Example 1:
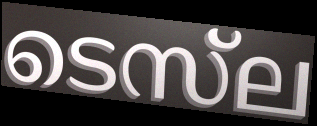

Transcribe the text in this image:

ടെസ്‌ല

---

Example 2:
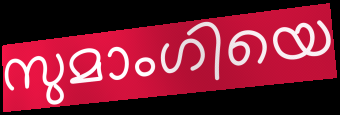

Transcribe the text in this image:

സുമാംഗിയെ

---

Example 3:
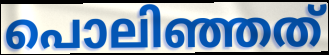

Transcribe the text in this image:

പൊലിഞ്ഞത്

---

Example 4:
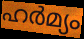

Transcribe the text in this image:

ഹർമ്യം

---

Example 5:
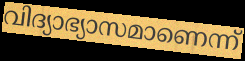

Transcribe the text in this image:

വിദ്യാഭ്യാസമാണെന്ന്